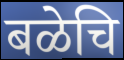
बळेचि